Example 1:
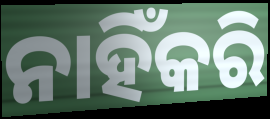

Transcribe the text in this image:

ନାହିଁକରି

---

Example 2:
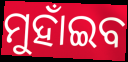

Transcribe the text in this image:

ମୁହାଁଇବ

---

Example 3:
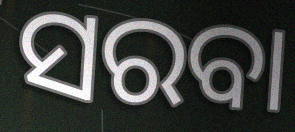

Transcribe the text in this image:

ସରବା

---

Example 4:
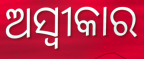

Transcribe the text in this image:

ଅସ୍ବୀକାର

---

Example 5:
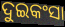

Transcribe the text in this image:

ଦୁଇକଂସା